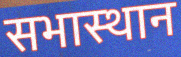
सभास्थान